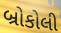
બ્રોકોલી